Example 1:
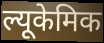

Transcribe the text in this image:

ल्यूकेमिक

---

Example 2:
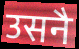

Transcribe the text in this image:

उसनै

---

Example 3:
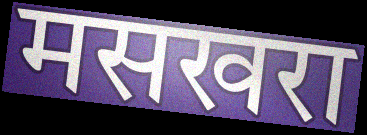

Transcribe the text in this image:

मसखरा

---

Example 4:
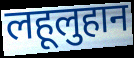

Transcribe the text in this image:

लहूलुहान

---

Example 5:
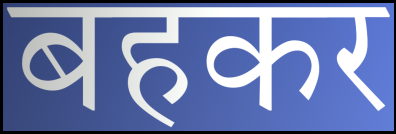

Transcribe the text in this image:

बहकर